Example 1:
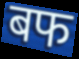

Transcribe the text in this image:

बफ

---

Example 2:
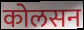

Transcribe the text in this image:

कोलसन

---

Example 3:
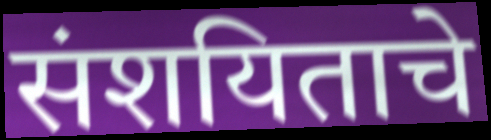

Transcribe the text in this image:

संशयिताचे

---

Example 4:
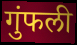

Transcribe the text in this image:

गुंफली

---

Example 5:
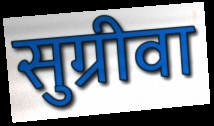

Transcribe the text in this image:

सुग्रीवा